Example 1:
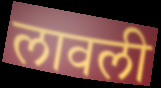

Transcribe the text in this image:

लावली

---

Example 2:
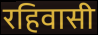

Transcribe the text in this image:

रहिवासी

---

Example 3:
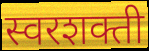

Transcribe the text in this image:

स्वरशक्ती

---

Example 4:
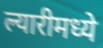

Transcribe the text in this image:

ल्यारीमध्ये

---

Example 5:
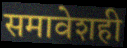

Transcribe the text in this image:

समावेशही